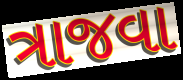
ત્રાજવા